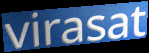
virasat